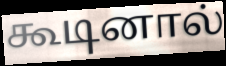
கூடினால்